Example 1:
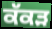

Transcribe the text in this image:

ਕੱਕੜ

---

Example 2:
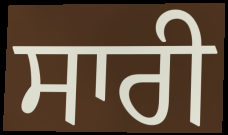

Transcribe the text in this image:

ਸਾਰੀ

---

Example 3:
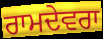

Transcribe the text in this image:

ਰਾਮਦੇਵਰਾ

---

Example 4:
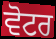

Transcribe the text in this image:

ਵੋਟਰ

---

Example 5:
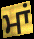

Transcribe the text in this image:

ਮਾਂ